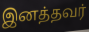
இனத்தவர்